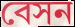
বেসন